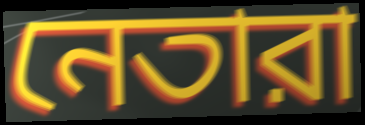
নেতারা